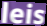
leis